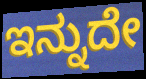
ಇನ್ನುದೇ